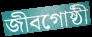
জীবগোষ্ঠী